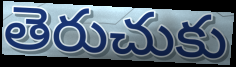
తెరుచుకు